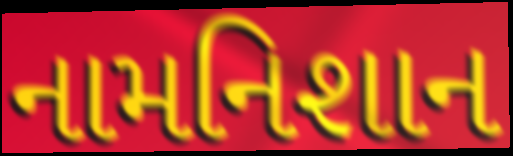
નામનિશાન